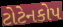
ટોટેનકોપ